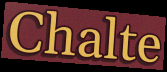
Chalte